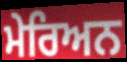
ਮੇਰਿਅਨ